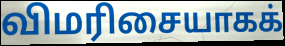
விமரிசையாகக்